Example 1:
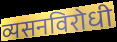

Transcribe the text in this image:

व्यसनविरोधी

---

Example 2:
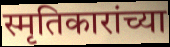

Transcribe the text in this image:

स्मृतिकारांच्या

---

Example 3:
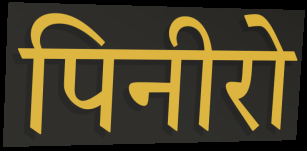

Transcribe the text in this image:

पिनीरो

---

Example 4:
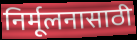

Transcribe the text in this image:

निर्मूलनासाठी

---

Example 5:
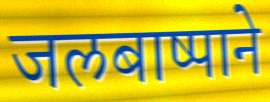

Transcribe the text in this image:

जलबाष्पाने